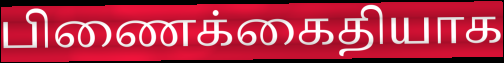
பிணைக்கைதியாக